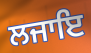
ਲਜਾਇ